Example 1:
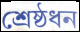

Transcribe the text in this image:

শ্রেষ্ঠধন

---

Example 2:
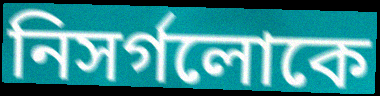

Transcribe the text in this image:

নিসর্গলোকে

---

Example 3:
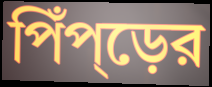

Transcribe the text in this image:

পিঁপ্ড়ের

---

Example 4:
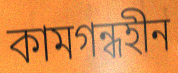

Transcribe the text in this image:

কামগন্ধহীন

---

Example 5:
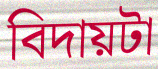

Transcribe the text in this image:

বিদায়টা